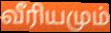
வீரியமும்